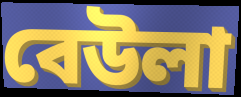
বেউলা